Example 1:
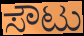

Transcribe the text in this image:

ಸೌಟು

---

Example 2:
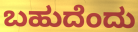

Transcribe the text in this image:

ಬಹುದೆಂದು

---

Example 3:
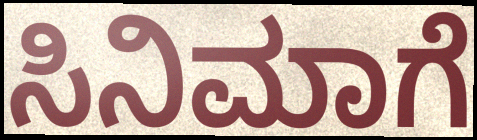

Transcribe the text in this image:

ಸಿನಿಮಾಗೆ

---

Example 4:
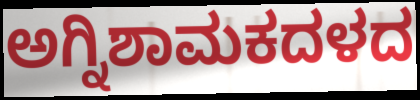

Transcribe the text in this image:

ಅಗ್ನಿಶಾಮಕದಳದ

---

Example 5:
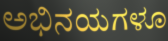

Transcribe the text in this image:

ಅಭಿನಯಗಳೂ